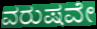
ವರುಷವೇ